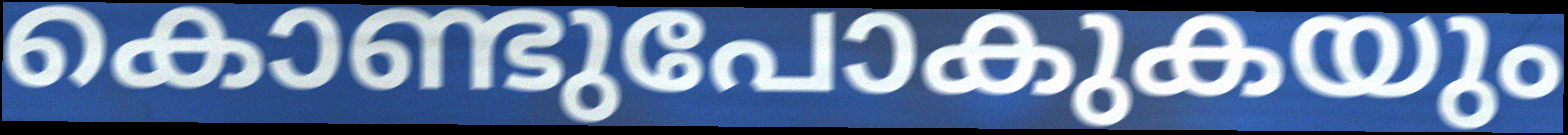
കൊണ്ടുപോകുകയും